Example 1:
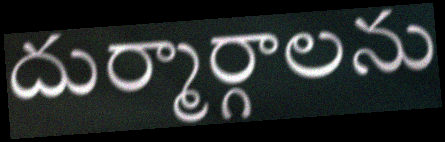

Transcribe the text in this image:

దుర్మార్గాలను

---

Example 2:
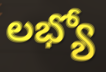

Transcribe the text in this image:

లభ్యో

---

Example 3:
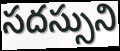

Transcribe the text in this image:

సదస్సుని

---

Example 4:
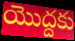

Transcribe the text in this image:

యొద్దకు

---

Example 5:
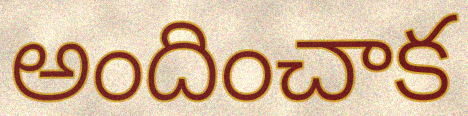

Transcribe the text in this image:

అందించాక